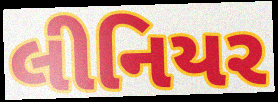
લીનિયર